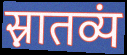
स्नातव्यं